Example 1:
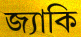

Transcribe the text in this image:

জ্যাকি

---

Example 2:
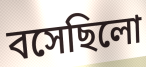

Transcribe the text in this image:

বসেছিলো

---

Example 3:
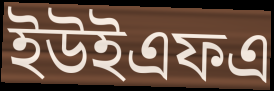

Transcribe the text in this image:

ইউইএফএ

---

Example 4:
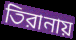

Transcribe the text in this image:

তিরানায়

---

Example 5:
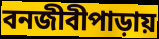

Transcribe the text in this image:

বনজীবীপাড়ায়